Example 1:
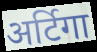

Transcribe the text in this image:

अर्टिगा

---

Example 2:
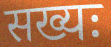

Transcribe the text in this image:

सख्यः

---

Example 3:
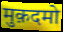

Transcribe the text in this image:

मुक़दमो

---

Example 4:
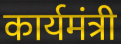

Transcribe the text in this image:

कार्यमंत्री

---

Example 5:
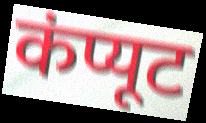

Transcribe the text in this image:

कंप्यूट